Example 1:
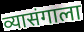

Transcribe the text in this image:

व्यासंगाला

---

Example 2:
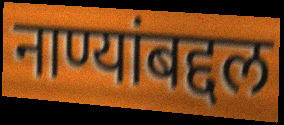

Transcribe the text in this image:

नाण्यांबद्दल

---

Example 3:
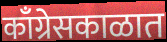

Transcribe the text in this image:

काँग्रेसकाळात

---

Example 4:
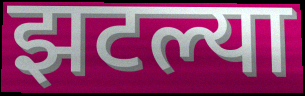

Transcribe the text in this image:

झटल्या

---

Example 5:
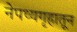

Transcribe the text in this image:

नेपथ्यगृहातून